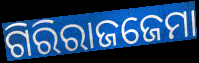
ଗିରିରାଜଜେମା